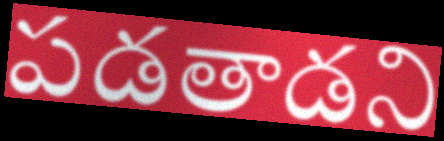
పడతాడని